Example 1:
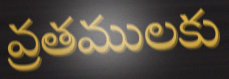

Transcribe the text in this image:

వ్రతములకు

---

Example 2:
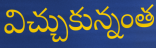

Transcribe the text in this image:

విచ్చుకున్నంత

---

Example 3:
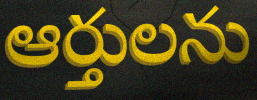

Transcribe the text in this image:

ఆర్తులను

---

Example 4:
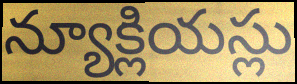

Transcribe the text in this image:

న్యూక్లియస్లు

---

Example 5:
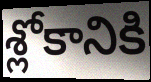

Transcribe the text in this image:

శ్లోకానికి